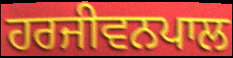
ਹਰਜੀਵਨਪਾਲ